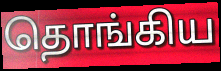
தொங்கிய